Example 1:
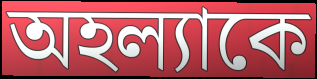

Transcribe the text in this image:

অহল্যাকে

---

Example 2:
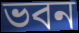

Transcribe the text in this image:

ভবন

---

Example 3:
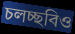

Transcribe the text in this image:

চলচ্ছবিও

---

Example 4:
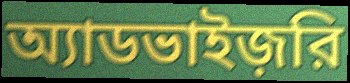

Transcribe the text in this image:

অ্যাডভাইজ়রি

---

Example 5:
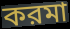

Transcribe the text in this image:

করমা